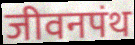
जीवनपंथ